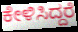
ಕೇಳಿಸಿದ್ದರೆ